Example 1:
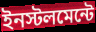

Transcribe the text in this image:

ইনস্টলমেন্টে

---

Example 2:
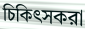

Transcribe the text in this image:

চিকিৎসকরা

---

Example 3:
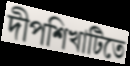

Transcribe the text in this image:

দীপশিখাটিতে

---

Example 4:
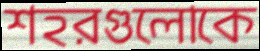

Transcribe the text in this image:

শহরগুলোকে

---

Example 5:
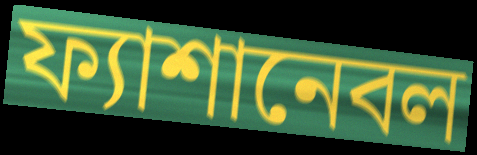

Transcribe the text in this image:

ফ্যাশানেবল